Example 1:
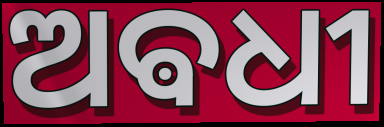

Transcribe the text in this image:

ଅଵଧୀ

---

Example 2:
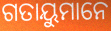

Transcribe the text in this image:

ଗତାୟୁମାନେ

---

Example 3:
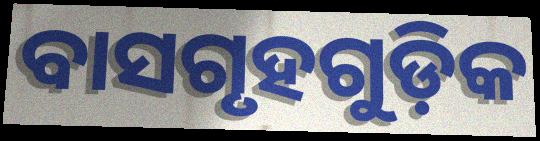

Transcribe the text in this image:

ବାସଗୃହଗୁଡ଼ିକ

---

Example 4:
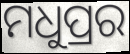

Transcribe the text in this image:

ମଧୁପ୍ରର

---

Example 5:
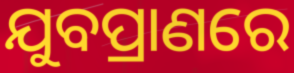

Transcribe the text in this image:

ଯୁବପ୍ରାଣରେ